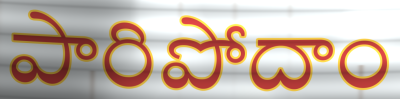
పారిపోదాం